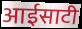
आईसाटी